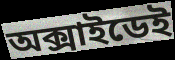
অক্সাইডেই